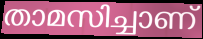
താമസിച്ചാണ്